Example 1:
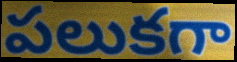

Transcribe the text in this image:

పలుకగా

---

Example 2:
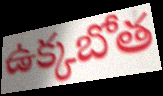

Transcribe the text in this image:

ఉక్కబోత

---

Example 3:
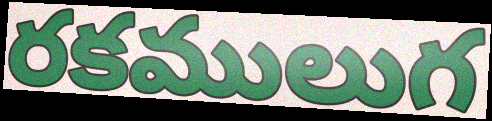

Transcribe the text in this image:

రకములుగ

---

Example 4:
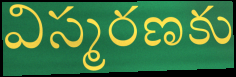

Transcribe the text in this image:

విస్మరణకు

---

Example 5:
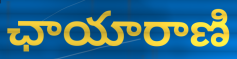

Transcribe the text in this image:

ఛాయారాణి